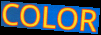
COLOR